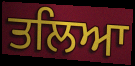
ਤਲਿਆ